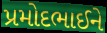
પ્રમોદભાઈને